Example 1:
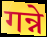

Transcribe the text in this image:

गन्ने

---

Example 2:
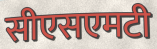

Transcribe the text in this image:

सीएसएमटी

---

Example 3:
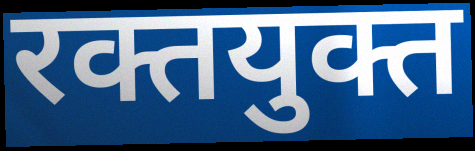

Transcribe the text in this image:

रक्तयुक्त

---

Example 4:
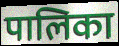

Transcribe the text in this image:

पालिका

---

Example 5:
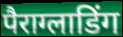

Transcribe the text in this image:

पैराग्लाडिंग